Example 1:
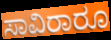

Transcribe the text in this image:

ಸಾವಿರಾರೂ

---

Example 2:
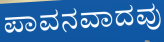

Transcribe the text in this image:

ಪಾವನವಾದವು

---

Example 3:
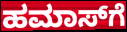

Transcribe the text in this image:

ಹಮಾಸ್‌ಗೆ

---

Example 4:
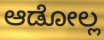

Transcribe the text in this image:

ಆಡೋಲ್ಲ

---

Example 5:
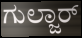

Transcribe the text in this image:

ಗುಲ್ಜಾರ್